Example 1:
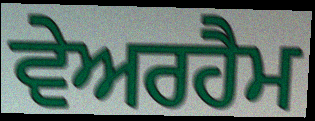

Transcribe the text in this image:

ਵੇਅਰਹੈਮ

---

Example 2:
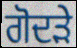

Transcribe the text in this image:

ਗੋਦੜੇ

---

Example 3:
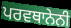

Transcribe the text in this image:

ਪਰਵਥਾਨੇਨੀ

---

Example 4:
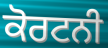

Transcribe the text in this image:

ਕੋਰਟਨੀ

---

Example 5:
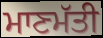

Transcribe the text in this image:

ਮਾਣਮੱਤੀ